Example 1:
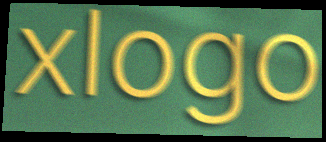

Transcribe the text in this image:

xlogo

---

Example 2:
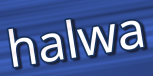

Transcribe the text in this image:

halwa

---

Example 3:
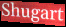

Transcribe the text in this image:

Shugart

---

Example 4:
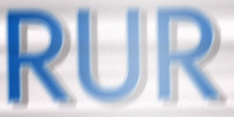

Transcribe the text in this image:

RUR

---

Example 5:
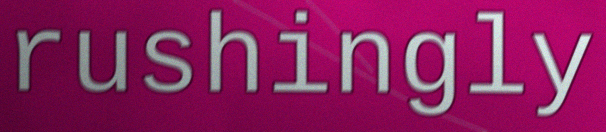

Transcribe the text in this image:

rushingly